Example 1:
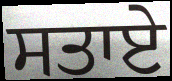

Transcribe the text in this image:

ਸਤਾਏ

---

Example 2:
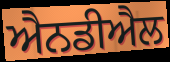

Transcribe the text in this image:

ਐਨਡੀਐਲ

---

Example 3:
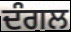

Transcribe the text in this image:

ਦੰਗਲ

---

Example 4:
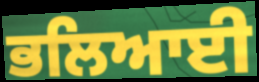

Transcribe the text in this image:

ਭਲਿਆਈ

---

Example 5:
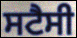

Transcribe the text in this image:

ਸਟੈਸੀ